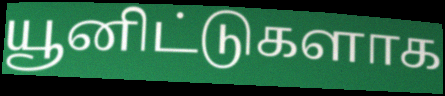
யூனிட்டுகளாக